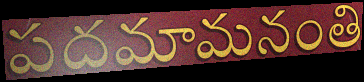
పదమామనంతి